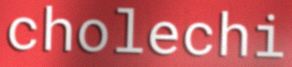
cholechi